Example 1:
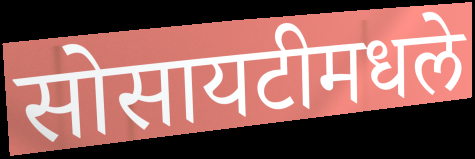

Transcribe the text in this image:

सोसायटीमधले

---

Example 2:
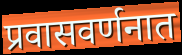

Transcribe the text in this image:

प्रवासवर्णनात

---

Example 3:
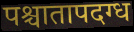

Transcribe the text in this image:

पश्चातापदग्ध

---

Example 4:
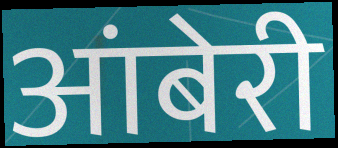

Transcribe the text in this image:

आंबेरी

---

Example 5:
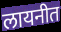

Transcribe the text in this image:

लायनीत